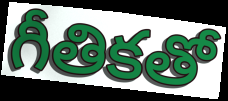
గీతికతో